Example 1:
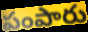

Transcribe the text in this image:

పంపారు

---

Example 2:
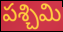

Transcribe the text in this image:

పశ్చిమి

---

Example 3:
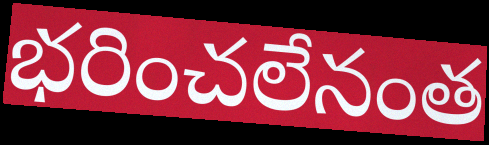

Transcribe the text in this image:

భరించలేనంత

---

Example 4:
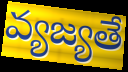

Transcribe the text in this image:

వ్యజ్యతే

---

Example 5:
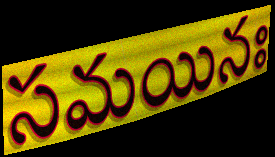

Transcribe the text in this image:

సమయినః